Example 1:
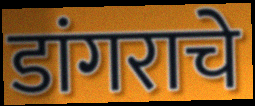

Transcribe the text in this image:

डांगराचे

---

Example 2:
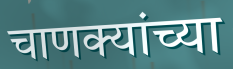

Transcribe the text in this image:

चाणक्यांच्या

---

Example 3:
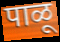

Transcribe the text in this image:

पाळू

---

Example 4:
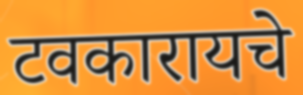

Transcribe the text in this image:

टवकारायचे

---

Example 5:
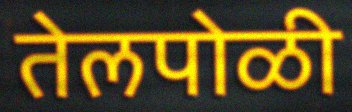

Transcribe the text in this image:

तेलपोळी